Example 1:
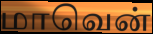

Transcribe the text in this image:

மாவென்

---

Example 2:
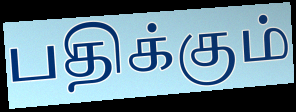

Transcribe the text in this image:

பதிக்கும்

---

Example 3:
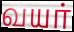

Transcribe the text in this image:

வயர்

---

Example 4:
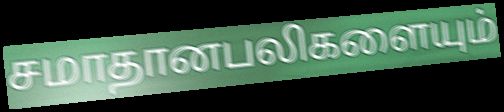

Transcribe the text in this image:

சமாதானபலிகளையும்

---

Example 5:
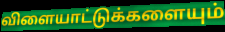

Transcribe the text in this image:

விளையாட்டுக்களையும்